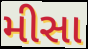
મીસા